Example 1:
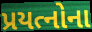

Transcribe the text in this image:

પ્રયત્નોના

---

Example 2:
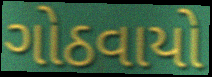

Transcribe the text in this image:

ગોઠવાયો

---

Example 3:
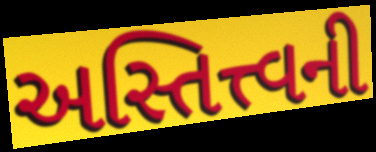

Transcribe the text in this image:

અસ્તિત્ત્વની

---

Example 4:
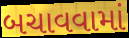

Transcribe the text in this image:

બચાવવામાં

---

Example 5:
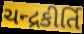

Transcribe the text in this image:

ચન્દ્રકીર્તિ